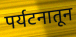
पर्यटनातून